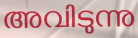
അവിടുന്നു